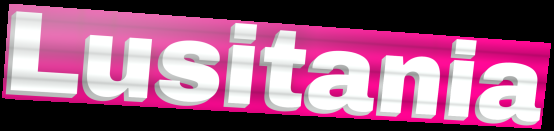
Lusitania